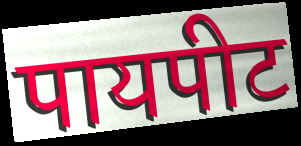
पायपीट